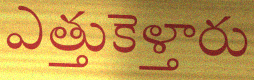
ఎత్తుకెళ్తారు